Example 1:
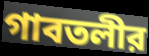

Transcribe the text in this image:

গাবতলীর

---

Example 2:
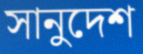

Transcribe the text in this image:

সানুদেশ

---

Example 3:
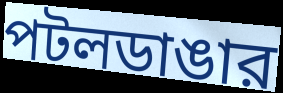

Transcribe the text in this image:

পটলডাঙার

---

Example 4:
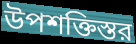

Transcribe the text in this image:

উপশক্তিস্তর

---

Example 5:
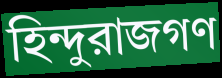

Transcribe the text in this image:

হিন্দুরাজগণ